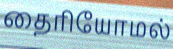
தைரியோமல்